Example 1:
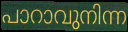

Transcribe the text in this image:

പാറാവുനിന്ന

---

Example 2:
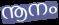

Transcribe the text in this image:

നൂനം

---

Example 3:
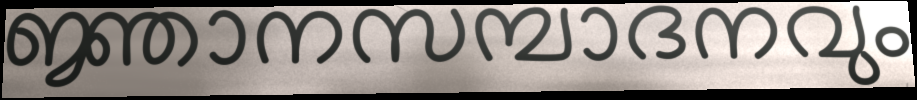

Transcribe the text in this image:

ജ്ഞാനസമ്പാദനവും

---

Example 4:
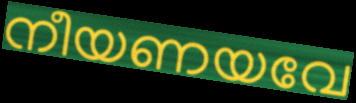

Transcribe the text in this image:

നീയണയവേ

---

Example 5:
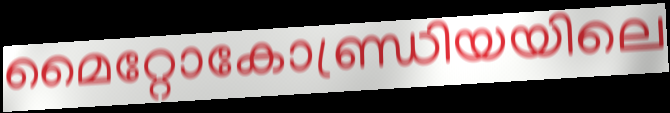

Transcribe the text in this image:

മൈറ്റോകോണ്ഡ്രിയയിലെ